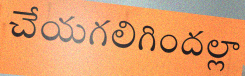
చేయగలిగిందల్లా